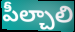
పీల్చాలి